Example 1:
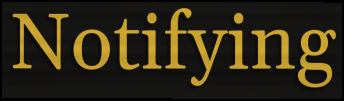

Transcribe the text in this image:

Notifying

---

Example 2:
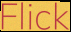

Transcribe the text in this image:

Flick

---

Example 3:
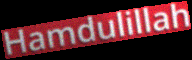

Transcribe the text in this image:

Hamdulillah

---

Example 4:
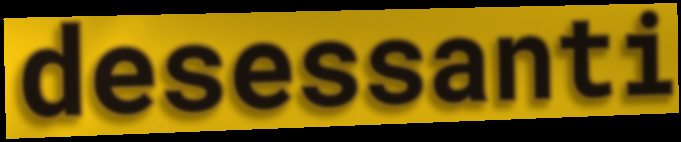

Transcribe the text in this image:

desessanti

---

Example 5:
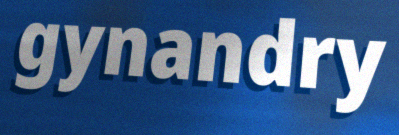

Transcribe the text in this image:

gynandry